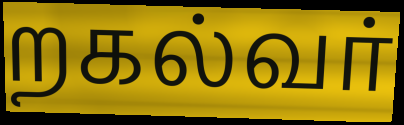
றகல்வர்